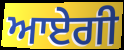
ਆਏਗੀ